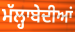
ਮੱਲ੍ਹਾਬੇਦੀਆਂ